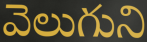
వెలుగుని